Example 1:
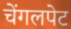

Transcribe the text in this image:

चेंगलपेट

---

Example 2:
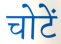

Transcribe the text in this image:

चोटें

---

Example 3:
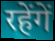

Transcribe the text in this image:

रहेंगें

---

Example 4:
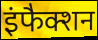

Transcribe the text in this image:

इंफैक्शन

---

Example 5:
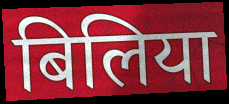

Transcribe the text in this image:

बिलिया